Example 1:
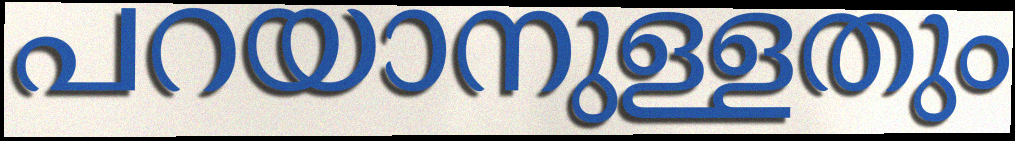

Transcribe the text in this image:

പറയാനുള്ളതും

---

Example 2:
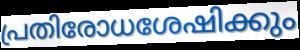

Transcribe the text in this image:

പ്രതിരോധശേഷിക്കും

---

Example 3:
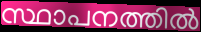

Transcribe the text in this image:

സ്ഥാപനത്തിൽ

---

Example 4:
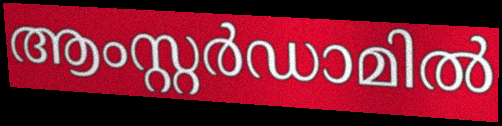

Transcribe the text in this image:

ആംസ്റ്റർഡാമിൽ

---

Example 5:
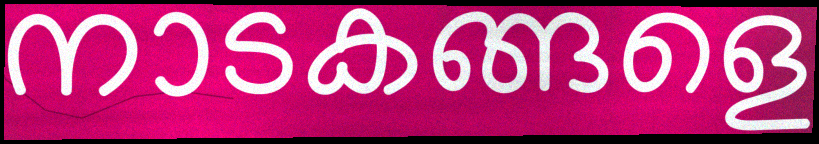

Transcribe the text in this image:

നാടകങ്ങളെ